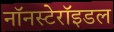
नॉनस्टेरॉइडल